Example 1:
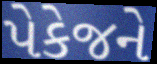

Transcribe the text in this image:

પેકેજને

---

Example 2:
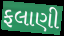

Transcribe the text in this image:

ફલાણી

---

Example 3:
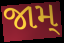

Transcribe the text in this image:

જામ્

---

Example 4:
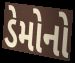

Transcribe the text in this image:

ડેમોનો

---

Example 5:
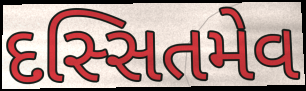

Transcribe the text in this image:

દસ્સિતમેવ